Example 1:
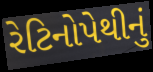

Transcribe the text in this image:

રેટિનોપેથીનું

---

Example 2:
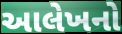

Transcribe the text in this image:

આલેખનો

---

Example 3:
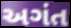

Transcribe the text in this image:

અગંત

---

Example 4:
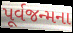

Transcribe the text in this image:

પૂર્વજન્મના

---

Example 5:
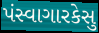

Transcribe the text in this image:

પંસ્વાગારકેસુ